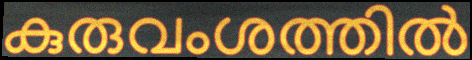
കുരുവംശത്തിൽ